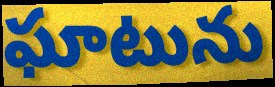
ఘాటును